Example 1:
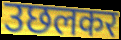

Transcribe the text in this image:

उछलकर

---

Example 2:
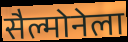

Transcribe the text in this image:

सैल्मोनेला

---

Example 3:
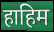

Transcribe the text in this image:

हाहिम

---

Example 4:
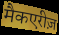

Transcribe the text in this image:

मैकएरीज़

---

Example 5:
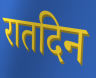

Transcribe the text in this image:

रातदिन